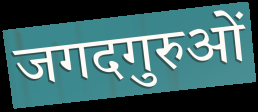
जगदगुरुओं